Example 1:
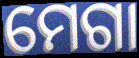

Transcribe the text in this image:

ମେଗା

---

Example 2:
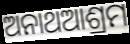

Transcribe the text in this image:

ଅନାଥଆଶ୍ରମ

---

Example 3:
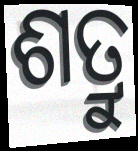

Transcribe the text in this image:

ଶତ୍ରୁ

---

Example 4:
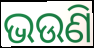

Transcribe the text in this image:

ଭଉଣି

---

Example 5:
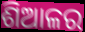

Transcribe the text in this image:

ଶିଆଳର